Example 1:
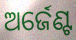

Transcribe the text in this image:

ଅର୍ଜେଣ୍ଟ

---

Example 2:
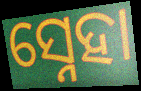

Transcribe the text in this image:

ସ୍ନେହା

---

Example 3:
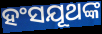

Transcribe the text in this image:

ହଂସଯୂଥଙ୍କ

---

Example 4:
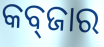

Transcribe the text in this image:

କବ୍‍ଜାର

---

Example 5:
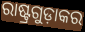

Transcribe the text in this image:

ରାଷ୍ଟ୍ରଗୁଡ଼ାକର